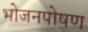
भोजनपोषण